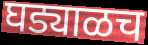
घड्याळच